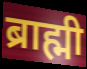
ब्राह्मी